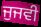
ਜੁਜਵੀ